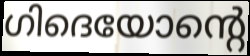
ഗിദെയോന്റെ